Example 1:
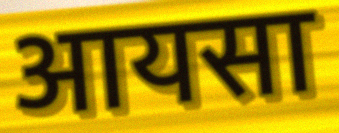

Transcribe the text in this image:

आयसा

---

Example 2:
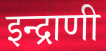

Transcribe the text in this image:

इन्द्राणी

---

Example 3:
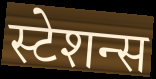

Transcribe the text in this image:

स्टेशन्स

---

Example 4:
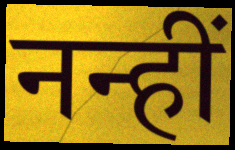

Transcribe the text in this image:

नन्‍हीं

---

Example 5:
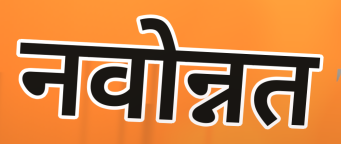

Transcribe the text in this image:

नवोन्नत